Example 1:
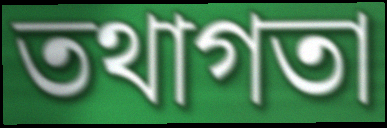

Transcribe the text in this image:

তথাগতা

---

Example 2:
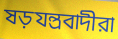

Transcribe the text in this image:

ষড়যন্ত্রবাদীরা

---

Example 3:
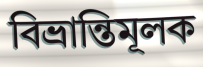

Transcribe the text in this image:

বিভ্রান্তিমূলক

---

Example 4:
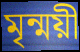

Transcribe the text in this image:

মৃন্ময়ী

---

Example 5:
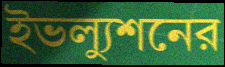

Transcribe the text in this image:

ইভল্যুশনের